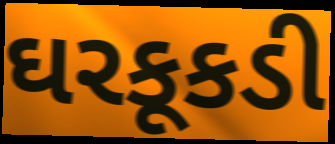
ઘરકૂકડી